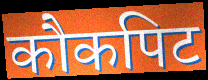
कौकपिट